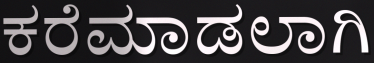
ಕರೆಮಾಡಲಾಗಿ